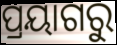
ପ୍ରୟାଗରୁ